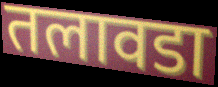
तलावडा